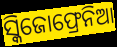
ସ୍କିଜୋଫ୍ରେନିଆ